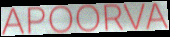
APOORVA